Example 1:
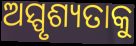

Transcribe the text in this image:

ଅସ୍ପୃଶ୍ୟତାକୁ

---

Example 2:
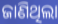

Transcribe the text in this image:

ଜାଣିଥିଲା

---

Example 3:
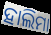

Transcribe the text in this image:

ହାଲିମା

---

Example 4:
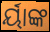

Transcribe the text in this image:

ର୍ୟାଙ୍କ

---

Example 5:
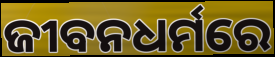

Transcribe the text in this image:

ଜୀବନଧର୍ମରେ